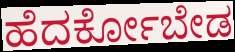
ಹೆದರ್ಕೋಬೇಡ